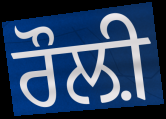
ਰੌਲ਼ੀ